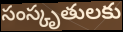
సంస్కృతులకు